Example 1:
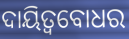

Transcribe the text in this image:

ଦାୟିତ୍ବବୋଧର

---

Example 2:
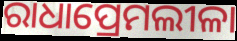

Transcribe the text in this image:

ରାଧାପ୍ରେମଲୀଳା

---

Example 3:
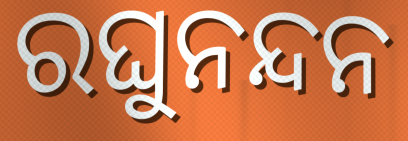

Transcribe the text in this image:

ରଘୁନନ୍ଦନ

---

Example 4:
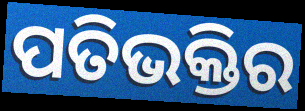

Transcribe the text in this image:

ପତିଭକ୍ତିର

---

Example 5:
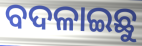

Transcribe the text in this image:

ବଦଳାଇଛୁ